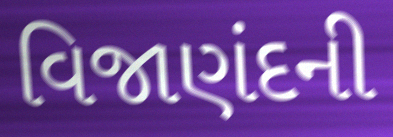
વિજાણંદની